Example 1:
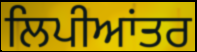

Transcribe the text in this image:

ਲਿਪੀਆਂਤਰ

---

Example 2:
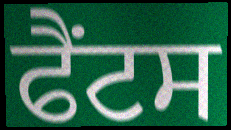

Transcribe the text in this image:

ਫੈਂਟਸ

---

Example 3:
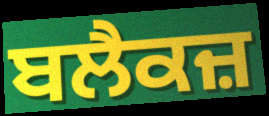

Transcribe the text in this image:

ਬਲੈਕਜ਼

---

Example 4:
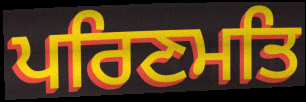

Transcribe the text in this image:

ਪਰਿਣਮਤਿ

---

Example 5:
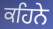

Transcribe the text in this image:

ਕਹਿਨੇ